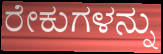
ರೇಕುಗಳನ್ನು